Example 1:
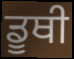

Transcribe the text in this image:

ਡੂਥੀ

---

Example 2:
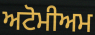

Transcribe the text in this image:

ਅਟੋਮੀਅਮ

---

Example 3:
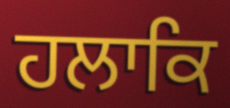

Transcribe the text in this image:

ਹਲਾਕਿ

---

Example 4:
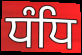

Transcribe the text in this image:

ਧੰਧਿ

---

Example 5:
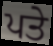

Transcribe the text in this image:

ਪਤੇ